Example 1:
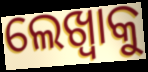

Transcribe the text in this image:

ଲେଖ୍ବାକୁ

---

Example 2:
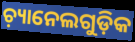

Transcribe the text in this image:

ଚ଼୍ୟାନେଲଗୁଡ଼ିକ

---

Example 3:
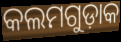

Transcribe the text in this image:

କଲମଗୁଡ଼ାକ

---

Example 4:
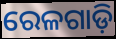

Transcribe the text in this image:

ରେଳଗାଡ଼ି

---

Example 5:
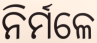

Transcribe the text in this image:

ନିର୍ମଳେ